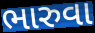
ભારુવા